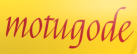
motugode